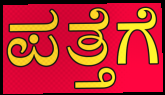
ಪತ್ತೆಗೆ